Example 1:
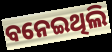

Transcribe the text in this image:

ବନେଇଥିଲି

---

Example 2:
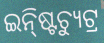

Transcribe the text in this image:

ଇନ୍ଷ୍ଟିଚ୍ୟୁଟ୍ର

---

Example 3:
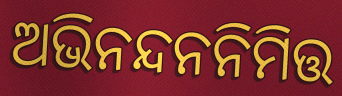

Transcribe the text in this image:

ଅଭିନନ୍ଦନନିମିତ୍ତ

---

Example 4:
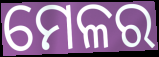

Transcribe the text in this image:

ମେଳର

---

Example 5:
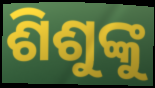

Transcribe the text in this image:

ଶିଶୁଙ୍କୁ